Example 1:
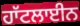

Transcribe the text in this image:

ਹਾੱਟਲਾਈਨ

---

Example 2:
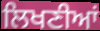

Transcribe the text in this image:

ਲਿਖਣੀਆਂ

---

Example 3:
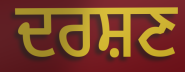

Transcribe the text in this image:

ਦਰਸ਼ਣ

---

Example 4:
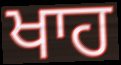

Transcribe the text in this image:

ਖਾਹ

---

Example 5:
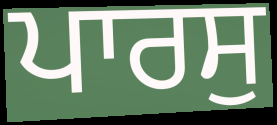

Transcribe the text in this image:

ਪਾਰਸੁ